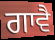
ਗਾਵੈ